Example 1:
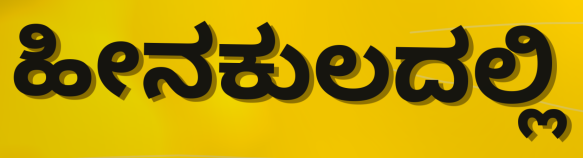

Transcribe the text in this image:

ಹೀನಕುಲದಲ್ಲಿ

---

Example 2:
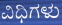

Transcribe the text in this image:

ವಿಧಿಗಳು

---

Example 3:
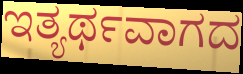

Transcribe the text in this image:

ಇತ್ಯರ್ಥವಾಗದ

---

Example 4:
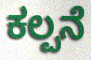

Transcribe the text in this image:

ಕಲ್ಪನೆ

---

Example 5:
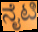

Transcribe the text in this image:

ನೈಟಿ